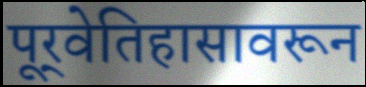
पूर्वेतिहासावरून